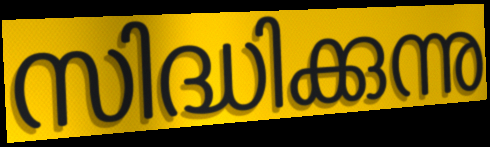
സിദ്ധിക്കുന്നു